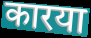
कारया